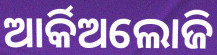
ଆର୍କିଅଲୋଜି